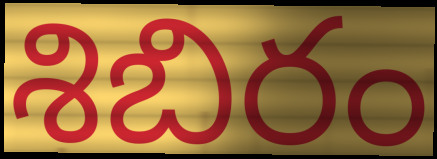
శిబిరం